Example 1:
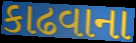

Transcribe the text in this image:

કાઢવાના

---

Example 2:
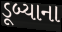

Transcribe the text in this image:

ડૂબ્યાના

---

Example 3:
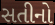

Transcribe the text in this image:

સતીનો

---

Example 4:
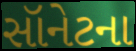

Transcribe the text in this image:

સૉનેટના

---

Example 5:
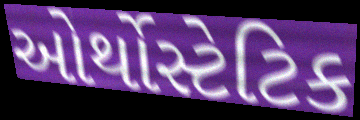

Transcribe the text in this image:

ઓર્થોસ્ટેટિક